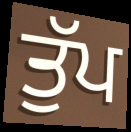
ਤੁੱਪ